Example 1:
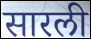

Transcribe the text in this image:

सारली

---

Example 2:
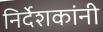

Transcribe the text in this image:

निर्देशकांनी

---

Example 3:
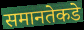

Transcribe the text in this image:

समानतेकडे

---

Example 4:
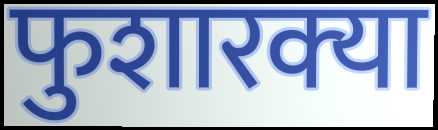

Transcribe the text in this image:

फुशारक्‍या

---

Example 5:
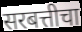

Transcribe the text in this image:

सरबत्तीचा